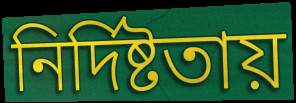
নির্দিষ্টতায়